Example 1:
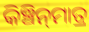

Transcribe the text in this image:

କିଞ୍ଚିନ୍‍ମାତ୍ର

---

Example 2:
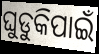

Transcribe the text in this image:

ଘୁଡୁକିପାଇଁ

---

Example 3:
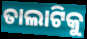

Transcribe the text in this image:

ତାଲାଟିକୁ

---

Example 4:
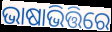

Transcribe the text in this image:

ଭାଷାଭିତ୍ତିରେ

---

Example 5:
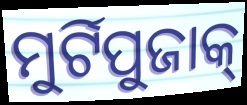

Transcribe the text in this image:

ମୁର୍ଟିପୁଜାକ୍